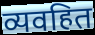
व्यवहित